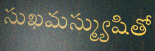
సుఖమస్మ్యుషితో